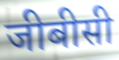
जीबीसी